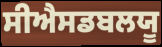
ਸੀਐਸਡਬਲਯੂ